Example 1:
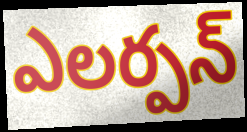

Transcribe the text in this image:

ఎలర్పన్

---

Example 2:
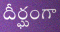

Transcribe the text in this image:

దీర్ఘంగా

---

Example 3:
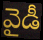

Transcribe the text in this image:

వైడీ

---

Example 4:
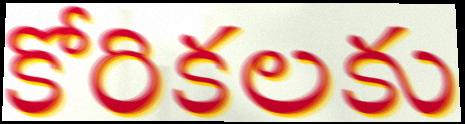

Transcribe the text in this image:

కోరికలకు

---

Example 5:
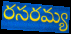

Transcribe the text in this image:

రసరమ్య